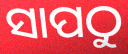
ସାପଠୁ